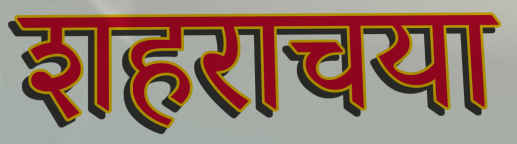
शहराचया